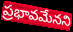
ప్రభావమేనని